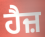
ਹੈਜ਼